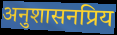
अनुशासनप्रिय